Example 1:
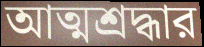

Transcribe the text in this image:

আত্মশ্রদ্ধার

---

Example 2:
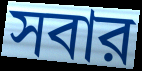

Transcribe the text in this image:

সবার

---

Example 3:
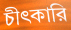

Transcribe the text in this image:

চীৎকারি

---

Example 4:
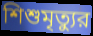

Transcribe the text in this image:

শিশুমৃত্যুর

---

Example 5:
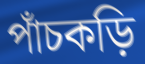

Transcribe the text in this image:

পাঁচকড়ি